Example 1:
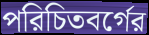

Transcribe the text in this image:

পরিচিতবর্গের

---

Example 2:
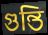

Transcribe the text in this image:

গুন্তি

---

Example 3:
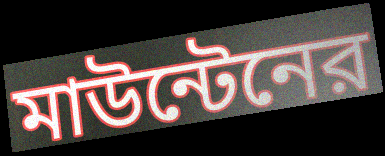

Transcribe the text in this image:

মাউন্টেনের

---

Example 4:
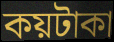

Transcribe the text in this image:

কয়টাকা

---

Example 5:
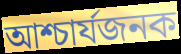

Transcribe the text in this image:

আশ্চার্যজনক